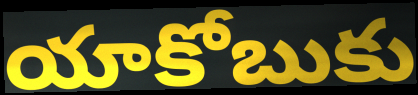
యాకోబుకు